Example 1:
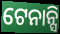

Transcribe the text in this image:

ଟେନାନ୍ସି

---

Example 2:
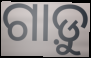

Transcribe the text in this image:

ଗାଡ଼ୁ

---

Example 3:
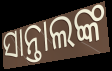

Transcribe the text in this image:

ସାନ୍ତାଲଙ୍କ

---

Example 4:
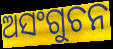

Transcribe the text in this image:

ଅସଂଗୁଚନ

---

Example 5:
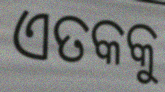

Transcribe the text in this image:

ଏତକକୁ